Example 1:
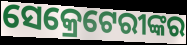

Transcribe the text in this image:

ସେକ୍ରେଟେରୀଙ୍କର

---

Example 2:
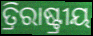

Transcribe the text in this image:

ତ୍ରିରାଷ୍ଟ୍ରୀୟ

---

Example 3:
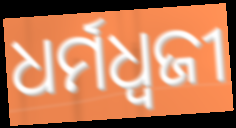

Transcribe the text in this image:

ଧର୍ମଧ୍ୱଜୀ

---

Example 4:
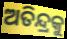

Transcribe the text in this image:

ଅତିନ୍ଦ୍ରକୁ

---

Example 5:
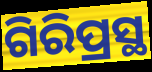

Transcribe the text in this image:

ଗିରିପ୍ରସ୍ଥ